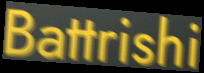
Battrishi